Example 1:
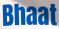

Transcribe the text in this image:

Bhaat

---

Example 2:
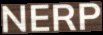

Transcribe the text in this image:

NERP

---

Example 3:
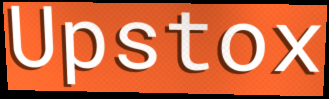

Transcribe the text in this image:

Upstox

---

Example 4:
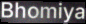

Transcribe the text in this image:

Bhomiya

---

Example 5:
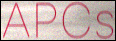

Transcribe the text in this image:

APCs